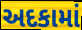
અદકામાં